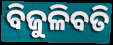
ବିଜୁଳିବତି